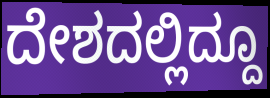
ದೇಶದಲ್ಲಿದ್ದೂ